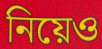
নিয়েও